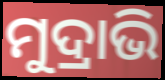
ମୁଦ୍ରାଭି